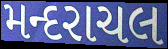
મન્દરાચલ